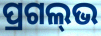
ପ୍ରଗଲ୍‌ଭ